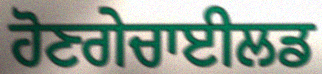
ਹੋਣਗੇਚਾਈਲਡ